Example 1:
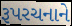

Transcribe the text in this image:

રૂપરચનાને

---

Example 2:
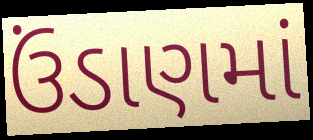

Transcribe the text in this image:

ઉંડાણમાં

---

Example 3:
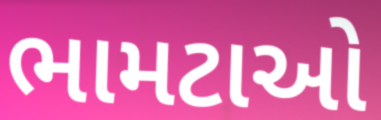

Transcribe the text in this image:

ભામટાઓ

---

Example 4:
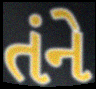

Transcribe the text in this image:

તંને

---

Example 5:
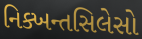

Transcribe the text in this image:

નિક્ખન્તસિલેસો